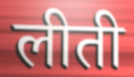
लीती